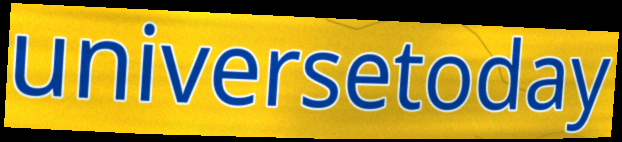
universetoday